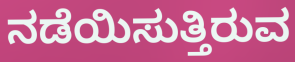
ನಡೆಯಿಸುತ್ತಿರುವ